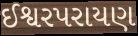
ઈશ્વરપરાયણ